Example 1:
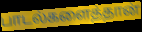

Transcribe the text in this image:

பாடல்களைத்தான்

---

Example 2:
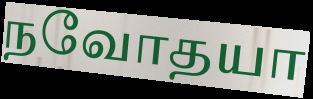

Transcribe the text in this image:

நவோதயா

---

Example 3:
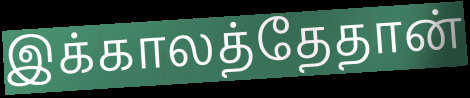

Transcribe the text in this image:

இக்காலத்தேதான்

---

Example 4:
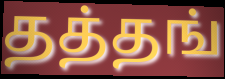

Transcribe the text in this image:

தத்தங்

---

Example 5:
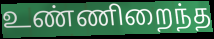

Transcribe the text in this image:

உண்ணிறைந்த